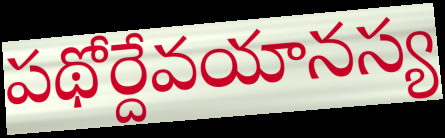
పథోర్దేవయానస్య